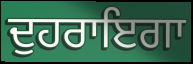
ਦੁਹਰਾਇਗਾ